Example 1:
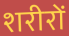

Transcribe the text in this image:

शरीरों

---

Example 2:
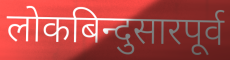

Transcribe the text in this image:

लोकबिन्दुसारपूर्व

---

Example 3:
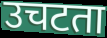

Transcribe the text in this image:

उचटता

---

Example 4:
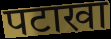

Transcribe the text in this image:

पटाखा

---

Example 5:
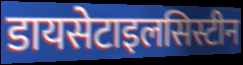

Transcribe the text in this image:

डायसेटाइलसिस्टीन